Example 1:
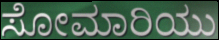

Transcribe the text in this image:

ಸೋಮಾರಿಯು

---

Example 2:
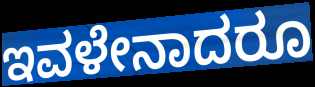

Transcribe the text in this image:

ಇವಳೇನಾದರೂ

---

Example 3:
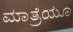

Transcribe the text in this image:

ಮಾತ್ರೆಯೂ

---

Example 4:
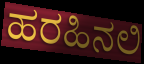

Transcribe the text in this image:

ಹರಹಿನಲಿ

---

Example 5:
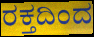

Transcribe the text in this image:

ರಕ್ತದಿಂದ